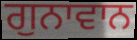
ਗੁਨਾਵਾਨ